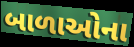
બાળાઓના